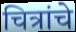
चित्रांचे